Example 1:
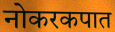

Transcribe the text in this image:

नोकरकपात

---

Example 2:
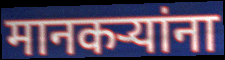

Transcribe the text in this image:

मानकऱ्यांना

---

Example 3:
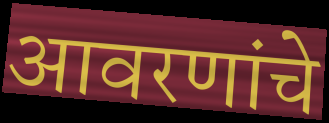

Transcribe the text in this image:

आवरणांचे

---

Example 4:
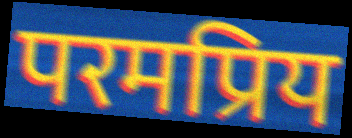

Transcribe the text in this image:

परमप्रिय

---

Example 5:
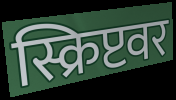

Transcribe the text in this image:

स्क्रिप्टवर